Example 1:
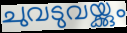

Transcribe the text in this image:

ചുവടുവയ്ക്കും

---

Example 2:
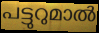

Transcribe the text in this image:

പട്ടുറുമാൽ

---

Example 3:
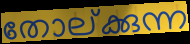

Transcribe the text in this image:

തോല്ക്കുന്ന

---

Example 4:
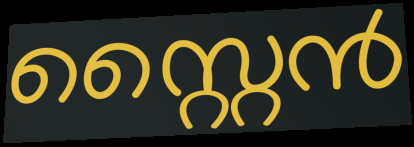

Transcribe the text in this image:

സ്റ്റൈൻ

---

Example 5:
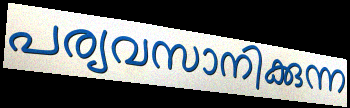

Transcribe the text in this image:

പര്യവസാനിക്കുന്ന